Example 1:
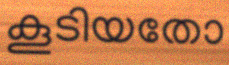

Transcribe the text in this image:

കൂടിയതോ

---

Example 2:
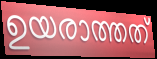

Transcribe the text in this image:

ഉയരാത്തത്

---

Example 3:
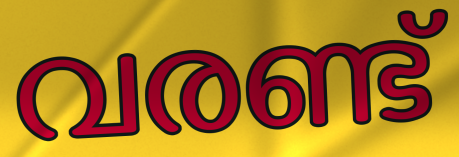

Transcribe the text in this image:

വരണ്ട്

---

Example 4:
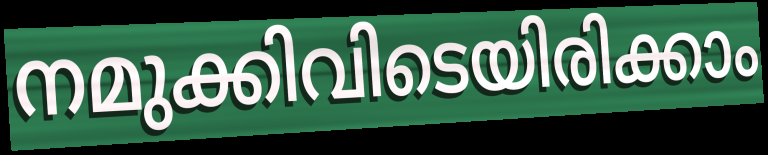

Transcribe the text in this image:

നമുക്കിവിടെയിരിക്കാം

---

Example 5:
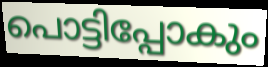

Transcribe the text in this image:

പൊട്ടിപ്പോകും